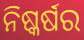
ନିଷ୍କର୍ଷର